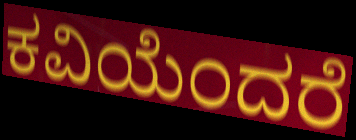
ಕವಿಯೆಂದರೆ